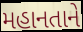
મહાનતાને